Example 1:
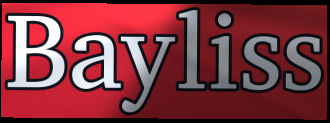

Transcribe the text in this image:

Bayliss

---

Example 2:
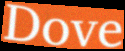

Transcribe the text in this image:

Dove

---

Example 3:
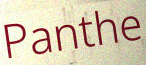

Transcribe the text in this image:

Panthe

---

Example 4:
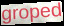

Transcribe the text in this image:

groped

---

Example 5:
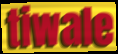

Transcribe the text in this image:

tiwale